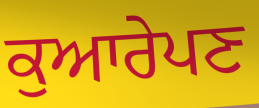
ਕੁਆਰੇਪਣ